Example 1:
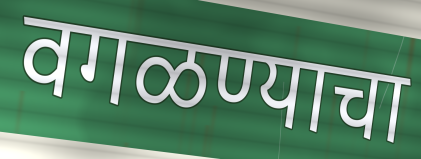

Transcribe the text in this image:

वगळण्याचा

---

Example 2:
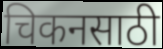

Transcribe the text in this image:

चिकनसाठी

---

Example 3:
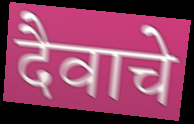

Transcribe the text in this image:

दैवाचे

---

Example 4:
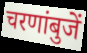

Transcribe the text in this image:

चरणांबुजें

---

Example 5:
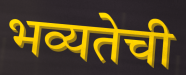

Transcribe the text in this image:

भव्यतेची